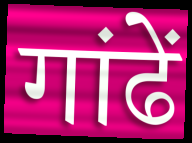
गांढें